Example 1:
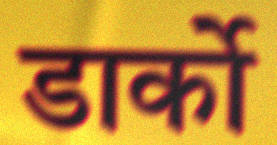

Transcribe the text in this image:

डार्को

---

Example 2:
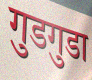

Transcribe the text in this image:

गुडगुडा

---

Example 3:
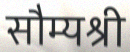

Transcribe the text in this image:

सौम्यश्री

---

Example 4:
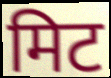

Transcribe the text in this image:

मिट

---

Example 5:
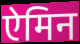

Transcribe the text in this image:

ऐमिन